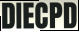
DIECPD